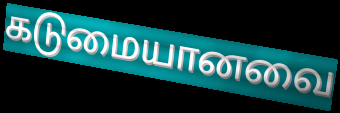
கடுமையானவை